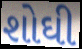
શોઘી